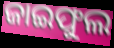
ଜାଇଫୁଲ